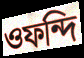
ওফন্দি